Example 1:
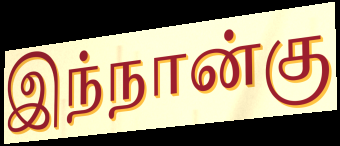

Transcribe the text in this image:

இந்நான்கு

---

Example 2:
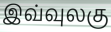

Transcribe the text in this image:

இவ்வுலகு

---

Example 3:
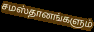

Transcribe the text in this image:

சமஸ்தானங்களும்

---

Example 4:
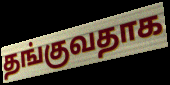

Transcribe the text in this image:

தங்குவதாக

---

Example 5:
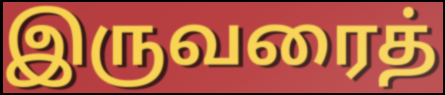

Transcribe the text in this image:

இருவரைத்